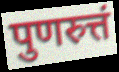
पुणरुत्तं